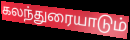
கலந்துரையாடும்